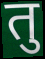
तु